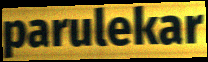
parulekar